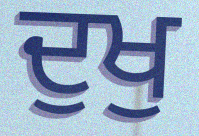
ਦੁਖੁ